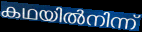
കഥയിൽനിന്ന്